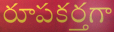
రూపకర్తగా